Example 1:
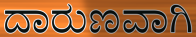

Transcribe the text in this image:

ದಾರುಣವಾಗಿ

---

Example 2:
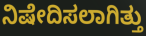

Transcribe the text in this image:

ನಿಷೇದಿಸಲಾಗಿತ್ತು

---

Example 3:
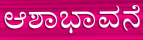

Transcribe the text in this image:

ಆಶಾಭಾವನೆ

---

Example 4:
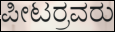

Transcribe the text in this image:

ಪೀಟರ್‍ರವರು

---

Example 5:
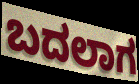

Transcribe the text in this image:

ಬದಲಾಗ